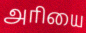
அரியை